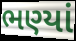
ભણ્યાં